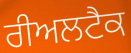
ਰੀਅਲਟੈਕ